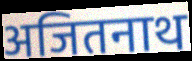
अजितनाथ